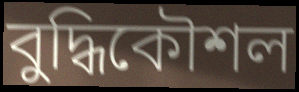
বুদ্ধিকৌশল